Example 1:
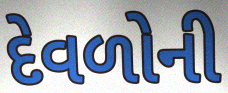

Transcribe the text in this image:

દેવળોની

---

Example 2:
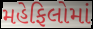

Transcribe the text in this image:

મહેફિલોમાં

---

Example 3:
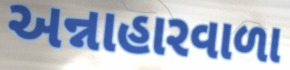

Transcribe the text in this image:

અન્નાહારવાળા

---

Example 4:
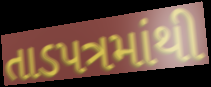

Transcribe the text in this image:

તાડપત્રમાંથી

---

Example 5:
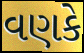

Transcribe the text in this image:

વણકે